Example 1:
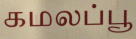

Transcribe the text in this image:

கமலப்பூ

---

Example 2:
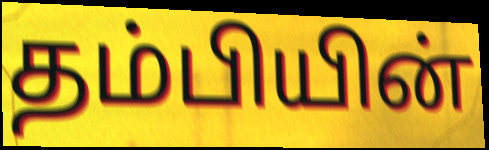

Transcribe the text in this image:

தம்பியின்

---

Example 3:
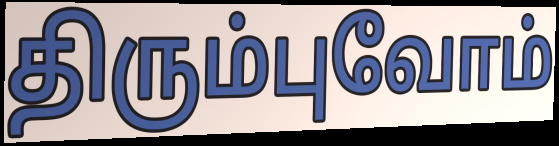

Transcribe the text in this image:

திரும்புவோம்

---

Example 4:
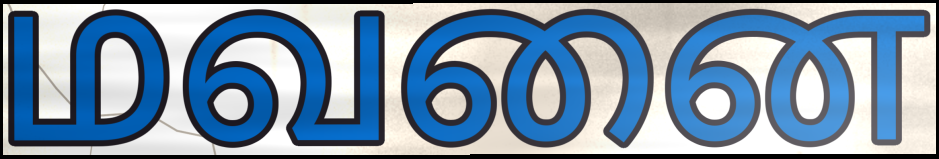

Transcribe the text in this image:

மவனை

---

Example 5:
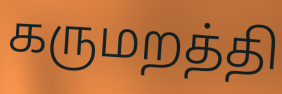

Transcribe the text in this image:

கருமறத்தி